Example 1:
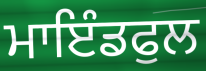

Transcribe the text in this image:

ਮਾਇੰਡਫੁਲ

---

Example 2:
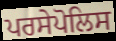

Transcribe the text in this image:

ਪਰਸੇਪੋਲਿਸ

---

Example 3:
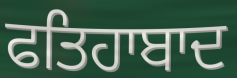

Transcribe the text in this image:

ਫਤਿਹਾਬਾਦ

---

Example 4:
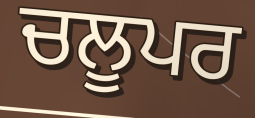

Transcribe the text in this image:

ਚਲੂਪਰ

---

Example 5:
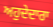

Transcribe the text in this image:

ਅਹੁਦੇਦਾਰਾ